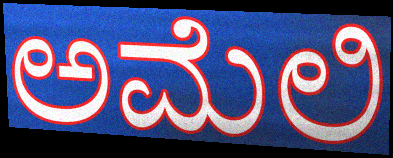
ಅಮೆಲಿ